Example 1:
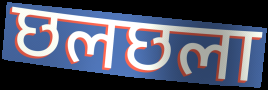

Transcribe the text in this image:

छलछला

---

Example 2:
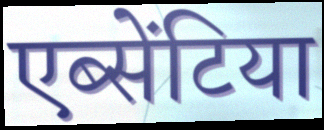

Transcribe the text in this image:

एब्सेंटिया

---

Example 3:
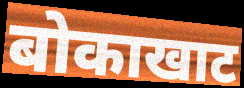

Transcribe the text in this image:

बोकाखाट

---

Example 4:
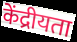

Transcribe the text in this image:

केंद्रीयता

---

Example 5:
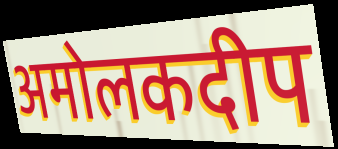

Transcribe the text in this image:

अमोलकदीप